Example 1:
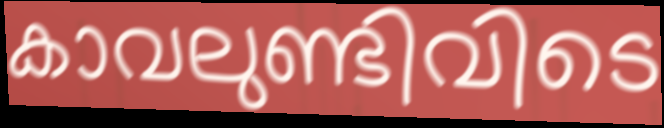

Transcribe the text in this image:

കാവലുണ്ടിവിടെ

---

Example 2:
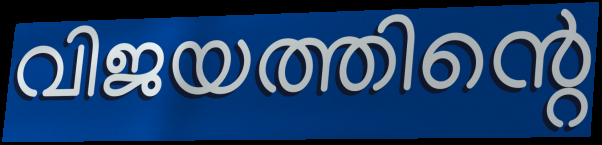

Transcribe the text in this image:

വിജയത്തിന്റെ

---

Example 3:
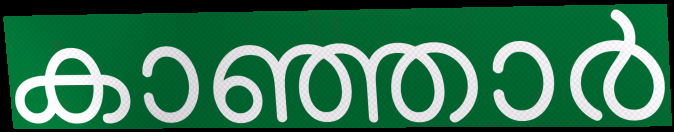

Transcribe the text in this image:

കാഞ്ഞാർ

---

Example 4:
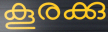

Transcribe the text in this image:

കൂരക്കു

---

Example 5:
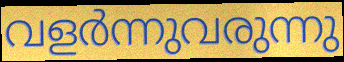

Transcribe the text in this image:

വളർന്നുവരുന്നു